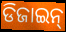
ଡିଜାଇନ୍